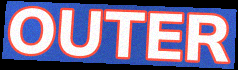
OUTER